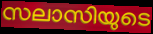
സലാസിയുടെ